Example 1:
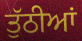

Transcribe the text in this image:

ਤੁੱਠੀਆਂ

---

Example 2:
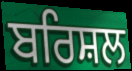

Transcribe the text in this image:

ਬਰਿਸ਼ਲ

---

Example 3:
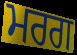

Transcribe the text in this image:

ਮਰਗ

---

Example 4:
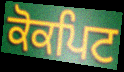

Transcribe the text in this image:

ਕੋਕਪਿਟ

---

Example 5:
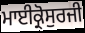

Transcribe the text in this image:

ਮਾਈਕ੍ਰੋਸੁਰਜੀ